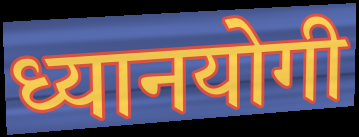
ध्यानयोगी